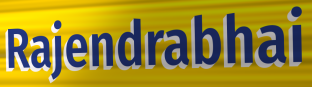
Rajendrabhai